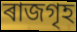
ৰাজগৃহ